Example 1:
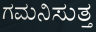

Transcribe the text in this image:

ಗಮನಿಸುತ್ತ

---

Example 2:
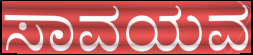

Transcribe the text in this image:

ಸಾವಯವ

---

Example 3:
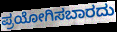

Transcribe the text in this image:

ಪ್ರಯೋಗಿಸಬಾರದು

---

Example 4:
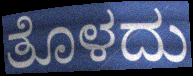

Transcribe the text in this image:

ತೊಳದು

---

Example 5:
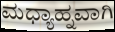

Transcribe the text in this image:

ಮಧ್ಯಾಹ್ನವಾಗಿ